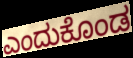
ಎಂದುಕೊಂಡ